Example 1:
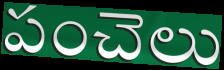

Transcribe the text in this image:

పంచెలు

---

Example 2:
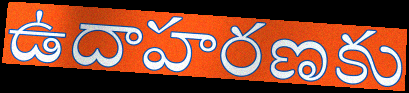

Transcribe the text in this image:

ఉదాహరణకు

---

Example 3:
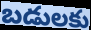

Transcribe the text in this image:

బడులకు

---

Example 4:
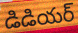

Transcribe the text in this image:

డిడియర్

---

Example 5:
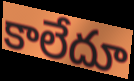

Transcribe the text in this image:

కాలేదూ